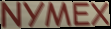
NYMEX